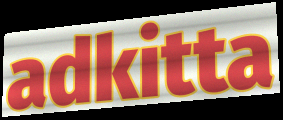
adkitta